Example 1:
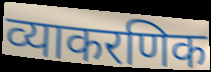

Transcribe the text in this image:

व्याकरणिक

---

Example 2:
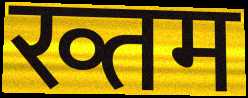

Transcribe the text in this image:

ख्तम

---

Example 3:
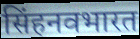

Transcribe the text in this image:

सिंहनवभारत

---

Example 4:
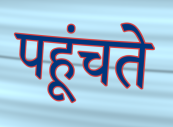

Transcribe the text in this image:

पहूंचते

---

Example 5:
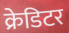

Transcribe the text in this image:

क्रेडिटर